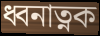
ধ্বনাত্নক